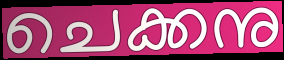
ചെക്കനു